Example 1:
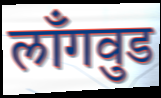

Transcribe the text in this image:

लाँगवुड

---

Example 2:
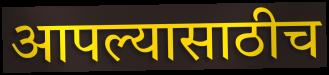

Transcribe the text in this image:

आपल्यासाठीच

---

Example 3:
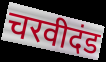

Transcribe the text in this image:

चरवीदंड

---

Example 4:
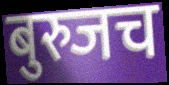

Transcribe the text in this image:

बुरुजच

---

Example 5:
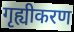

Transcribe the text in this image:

गृह्यीकरण